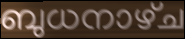
ബുധനാഴ്‌ച